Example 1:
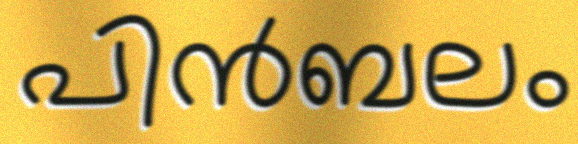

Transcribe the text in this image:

പിൻബലം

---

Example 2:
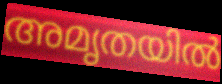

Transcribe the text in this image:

അമൃതയിൽ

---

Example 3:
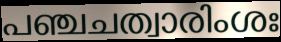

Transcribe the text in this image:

പഞ്ചചത്വാരിംശഃ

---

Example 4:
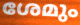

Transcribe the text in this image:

ശേമും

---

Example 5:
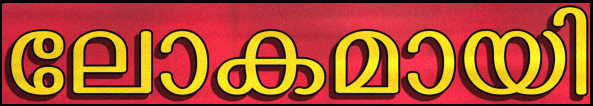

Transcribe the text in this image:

ലോകമായി